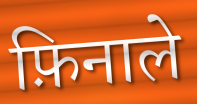
फ़िनाले